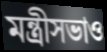
মন্ত্রীসভাও